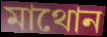
মাথোন